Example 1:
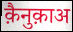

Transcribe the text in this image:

क़ैनुक़ाअ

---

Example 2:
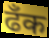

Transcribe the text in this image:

ढँक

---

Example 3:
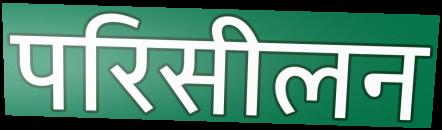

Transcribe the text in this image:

परिसीलन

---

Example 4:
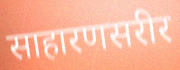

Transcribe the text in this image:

साहारणसरीर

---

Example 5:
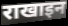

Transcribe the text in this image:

राखाइन